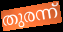
തുരന്ന്